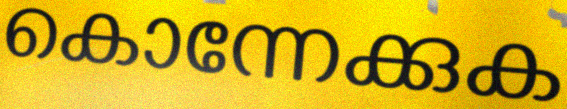
കൊന്നേക്കുക